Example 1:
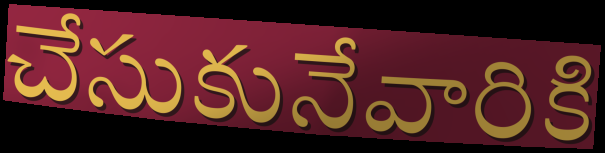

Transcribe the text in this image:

చేసుకునేవారికి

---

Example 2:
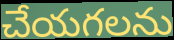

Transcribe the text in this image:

చేయగలను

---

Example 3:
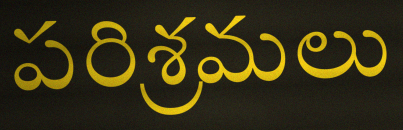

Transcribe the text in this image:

పరిశ్రమలు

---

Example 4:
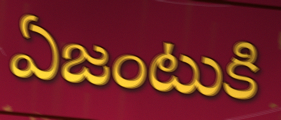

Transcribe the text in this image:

ఏజంటుకి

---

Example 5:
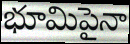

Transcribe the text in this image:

భూమిపైనా